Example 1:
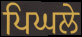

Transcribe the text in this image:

ਪਿਘਲੇ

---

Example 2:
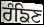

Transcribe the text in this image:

ਰੰਙਿਣ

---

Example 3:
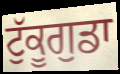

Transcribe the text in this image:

ਟੁੱਕੂਗੁਡਾ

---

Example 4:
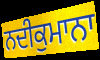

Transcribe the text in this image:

ਨਦੀਕੁਮਾਨਾ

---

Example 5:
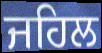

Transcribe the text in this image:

ਜਹਿਲ